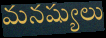
మనష్యులు